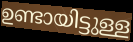
ഉണ്ടായിട്ടുള്ള